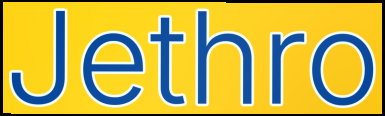
Jethro